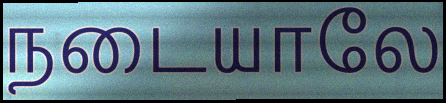
நடையாலே